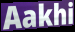
Aakhi